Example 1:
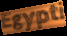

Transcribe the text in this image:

Egypti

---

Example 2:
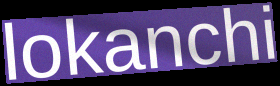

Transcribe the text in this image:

lokanchi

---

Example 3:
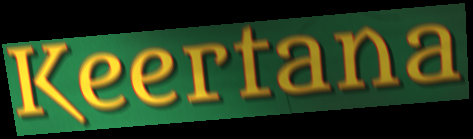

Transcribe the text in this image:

Keertana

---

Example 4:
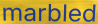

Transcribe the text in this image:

marbled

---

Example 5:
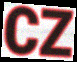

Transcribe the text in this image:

CZ